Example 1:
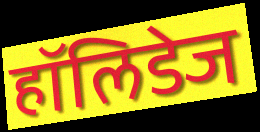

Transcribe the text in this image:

हॉलिडेज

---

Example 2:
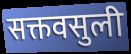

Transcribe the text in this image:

सक्तवसुली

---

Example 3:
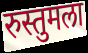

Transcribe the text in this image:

रुस्तुमला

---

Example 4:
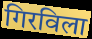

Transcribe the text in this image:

गिरविला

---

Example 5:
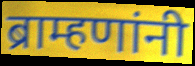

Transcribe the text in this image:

ब्राम्हणांनी